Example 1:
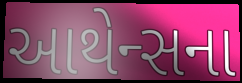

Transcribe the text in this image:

આથેન્સના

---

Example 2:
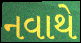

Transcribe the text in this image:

નવાથે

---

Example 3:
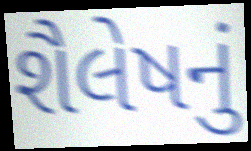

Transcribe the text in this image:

શૈલેષનું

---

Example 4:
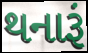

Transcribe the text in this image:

થનારૂં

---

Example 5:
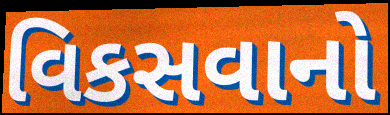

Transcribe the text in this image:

વિકસવાનો